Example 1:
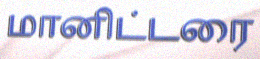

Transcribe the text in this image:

மானிட்டரை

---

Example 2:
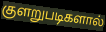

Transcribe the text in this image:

குளறுபடிகளால்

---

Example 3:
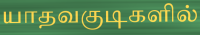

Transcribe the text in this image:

யாதவகுடிகளில்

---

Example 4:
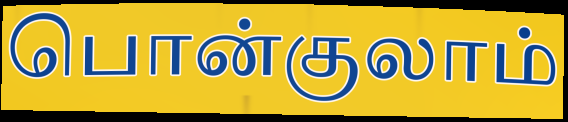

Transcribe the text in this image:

பொன்குலாம்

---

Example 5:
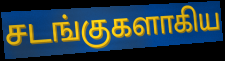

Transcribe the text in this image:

சடங்குகளாகிய